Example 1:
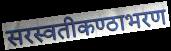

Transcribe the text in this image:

सरस्वतीकण्ठाभरण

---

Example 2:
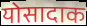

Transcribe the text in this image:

योसादाक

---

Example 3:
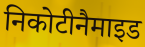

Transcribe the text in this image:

निकोटीनैमाइड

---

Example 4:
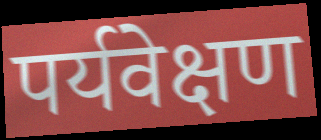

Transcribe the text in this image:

पर्यवेक्षण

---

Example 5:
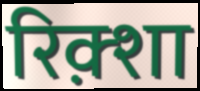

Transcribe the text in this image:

रिक़्शा